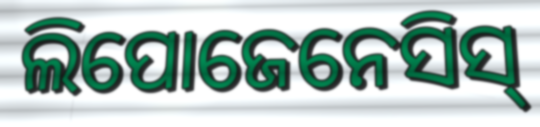
ଲିପୋଜେନେସିସ୍